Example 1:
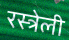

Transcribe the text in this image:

रस्त्रेली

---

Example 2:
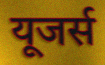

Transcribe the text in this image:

यूजर्स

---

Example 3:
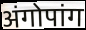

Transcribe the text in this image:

अंगोपांग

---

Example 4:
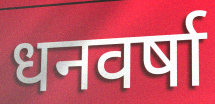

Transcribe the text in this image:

धनवर्षा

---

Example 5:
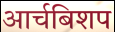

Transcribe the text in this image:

आर्चबिशप